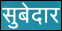
सुबेदार